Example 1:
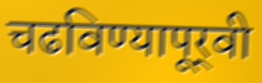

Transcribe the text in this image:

चढविण्यापूर्वी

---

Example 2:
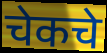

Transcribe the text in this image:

चेकचे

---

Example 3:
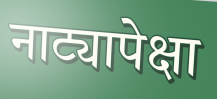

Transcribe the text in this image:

नाट्यापेक्षा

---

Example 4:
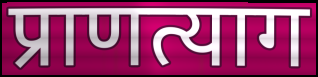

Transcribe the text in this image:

प्राणत्याग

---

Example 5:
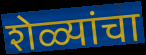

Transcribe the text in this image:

शेळ्यांचा